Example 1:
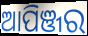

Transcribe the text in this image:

ଆପିଞ୍ଜର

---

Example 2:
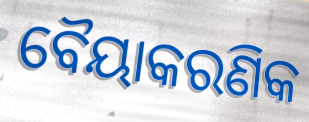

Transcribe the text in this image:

ବୈୟାକରଣିକ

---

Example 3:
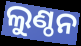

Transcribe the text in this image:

ଲୁଣ୍ଠନ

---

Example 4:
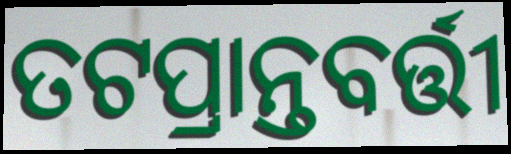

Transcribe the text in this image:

ତଟପ୍ରାନ୍ତବର୍ତ୍ତୀ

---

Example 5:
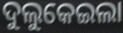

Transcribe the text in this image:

ଦୁଲୁକେଇଲା